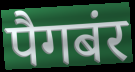
पैगबंर